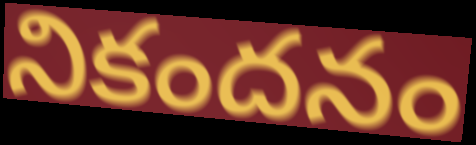
నికందనం